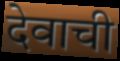
देवाची